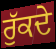
ਰੁੱਕਦੇ